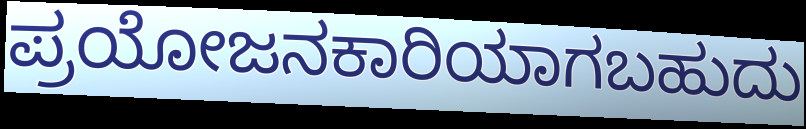
ಪ್ರಯೋಜನಕಾರಿಯಾಗಬಹುದು